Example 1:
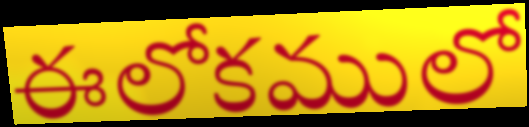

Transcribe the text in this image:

ఈలోకములో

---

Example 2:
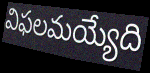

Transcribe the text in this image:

విఫలమయ్యేది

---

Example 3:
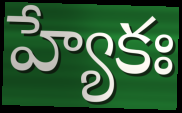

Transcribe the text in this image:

హ్యేకః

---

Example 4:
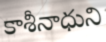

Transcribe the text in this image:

కాశీనాధుని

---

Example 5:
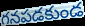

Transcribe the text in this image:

గనపడకుండ